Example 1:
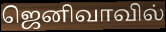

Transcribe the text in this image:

ஜெனிவாவில்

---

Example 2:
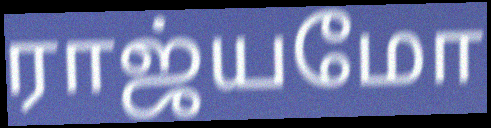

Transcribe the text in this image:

ராஜ்யமோ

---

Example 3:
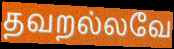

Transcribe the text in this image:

தவறல்லவே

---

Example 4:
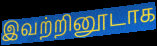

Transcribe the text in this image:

இவற்றினூடாக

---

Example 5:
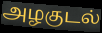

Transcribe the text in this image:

அழகுடல்